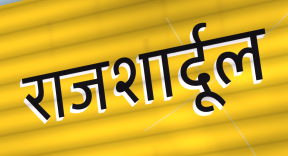
राजशार्दूल